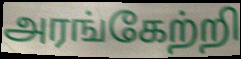
அரங்கேற்றி